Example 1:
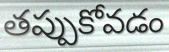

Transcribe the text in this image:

తప్పుకోవడం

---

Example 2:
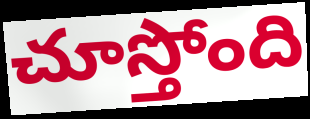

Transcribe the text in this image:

చూస్తోంది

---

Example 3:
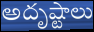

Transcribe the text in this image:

అదృష్టాలు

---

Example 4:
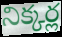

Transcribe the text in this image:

నిక్కర్ల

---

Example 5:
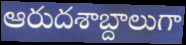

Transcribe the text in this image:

ఆరుదశాబ్దాలుగా